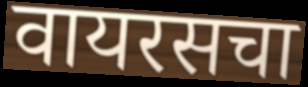
वायरसचा